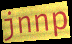
jnnp